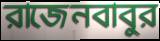
রাজেনবাবুর